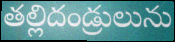
తల్లిదండ్రులును